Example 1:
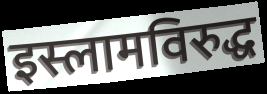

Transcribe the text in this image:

इस्लामविरुद्ध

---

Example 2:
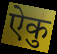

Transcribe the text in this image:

ऐकु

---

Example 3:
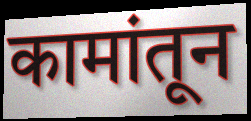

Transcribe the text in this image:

कामांतून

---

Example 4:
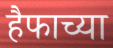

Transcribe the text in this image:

हैफाच्या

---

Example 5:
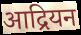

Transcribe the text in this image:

आद्रियन